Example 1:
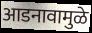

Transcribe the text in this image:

आडनावामुळे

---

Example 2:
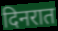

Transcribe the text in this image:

दिनरात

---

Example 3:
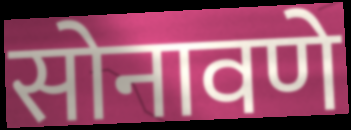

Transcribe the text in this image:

सोनावणे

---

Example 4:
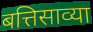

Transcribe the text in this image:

बत्तिसाव्या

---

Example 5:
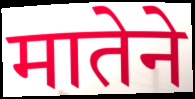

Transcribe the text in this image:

मातेने